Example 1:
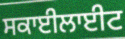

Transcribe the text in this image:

ਸਕਾਈਲਾਈਟ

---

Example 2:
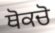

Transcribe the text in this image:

ਥੋਕਚੋ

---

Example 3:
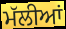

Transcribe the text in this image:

ਮੱਲੀਆਂ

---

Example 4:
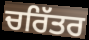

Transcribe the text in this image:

ਚਰਿੱਤਰ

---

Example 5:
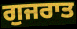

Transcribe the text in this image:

ਗੁਜਰਾਤ